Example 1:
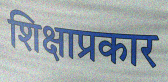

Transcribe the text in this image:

शिक्षाप्रकार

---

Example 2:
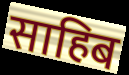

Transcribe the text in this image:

साहिब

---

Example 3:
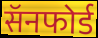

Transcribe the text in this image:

सॅनफोर्ड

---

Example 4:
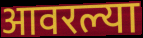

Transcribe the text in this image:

आवरल्या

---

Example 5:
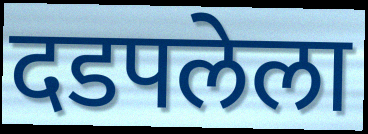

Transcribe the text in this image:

दडपलेला